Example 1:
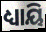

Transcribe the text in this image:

ଧ୍ୟାୟି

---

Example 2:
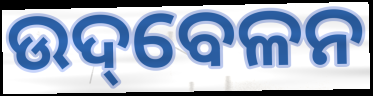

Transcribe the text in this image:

ଉଦ୍‌ବେଳନ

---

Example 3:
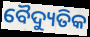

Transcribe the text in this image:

ବୈଦ୍ୟୁତିକ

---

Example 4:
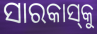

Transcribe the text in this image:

ସାରକାସ୍‌କୁ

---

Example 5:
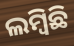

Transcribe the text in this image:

ଲମ୍ବିଛି